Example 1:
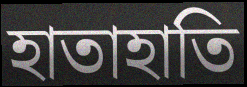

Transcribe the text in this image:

হাতাহাতি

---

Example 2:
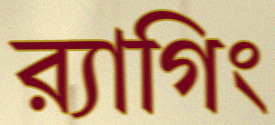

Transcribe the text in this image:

র‍্যাগিং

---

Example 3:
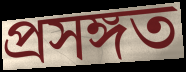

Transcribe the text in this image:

প্রসঙ্গত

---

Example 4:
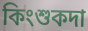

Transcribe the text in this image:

কিংশুকদা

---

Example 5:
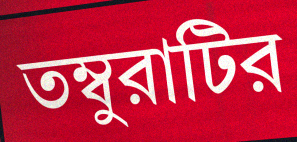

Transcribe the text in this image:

তম্বুরাটির